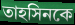
তাহসিনকে